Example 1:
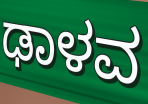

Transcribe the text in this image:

ಢಾಳವ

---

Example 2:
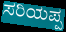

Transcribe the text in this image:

ಸರಿಯಪ್ಪ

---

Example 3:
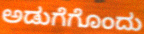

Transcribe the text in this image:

ಅಡುಗೆಗೊಂದು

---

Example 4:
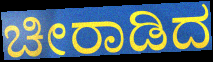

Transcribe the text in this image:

ಚೀರಾಡಿದ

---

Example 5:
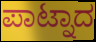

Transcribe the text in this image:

ಪಾಟ್ನಾದ